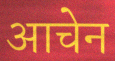
आचेन